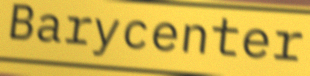
Barycenter